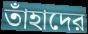
তাঁহাদের